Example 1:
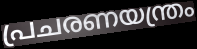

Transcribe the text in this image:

പ്രചരണയന്ത്രം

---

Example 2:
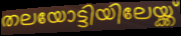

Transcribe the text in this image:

തലയോട്ടിയിലേയ്ക്ക്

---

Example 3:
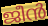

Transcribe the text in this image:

ജീൻ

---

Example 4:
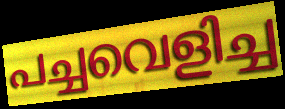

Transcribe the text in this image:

പച്ചവെളിച്ച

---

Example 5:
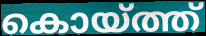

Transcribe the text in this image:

കൊയ്ത്ത്